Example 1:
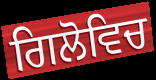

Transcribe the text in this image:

ਗਿਲੋਵਿਚ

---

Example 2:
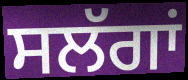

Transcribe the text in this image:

ਸਲੱਗਾਂ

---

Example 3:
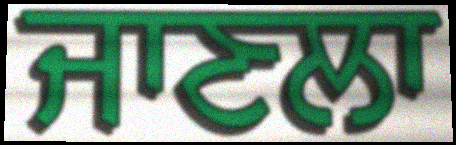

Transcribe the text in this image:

ਜਾਣਲਾ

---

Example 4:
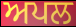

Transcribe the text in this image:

ਅਪਲ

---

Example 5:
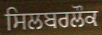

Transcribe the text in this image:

ਸਿਲਬਰਲੌਕ